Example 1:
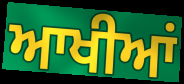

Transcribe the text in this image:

ਆਖੀਆਂ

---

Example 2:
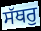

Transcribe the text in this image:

ਸੱਥਰੁ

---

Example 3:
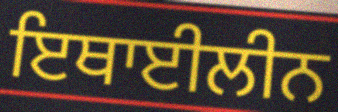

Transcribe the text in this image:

ਇਥਾਈਲੀਨ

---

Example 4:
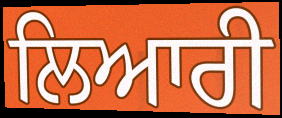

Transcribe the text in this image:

ਲਿਆਰੀ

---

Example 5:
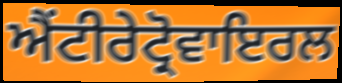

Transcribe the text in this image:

ਐਂਟੀਰੇਟ੍ਰੋਵਾਇਰਲ